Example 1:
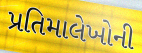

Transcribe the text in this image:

પ્રતિમાલેખોની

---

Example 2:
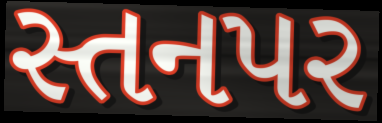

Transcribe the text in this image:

સ્તનપર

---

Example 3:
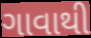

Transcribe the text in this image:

ગાવાથી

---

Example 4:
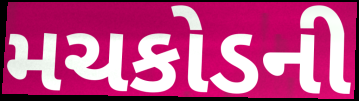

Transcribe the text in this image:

મચકોડની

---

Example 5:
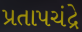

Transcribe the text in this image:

પ્રતાપચંદ્રે